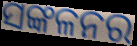
ସଙ୍କଳନର